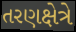
તરણક્ષેત્રે